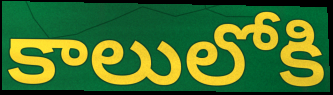
కాలులోకి